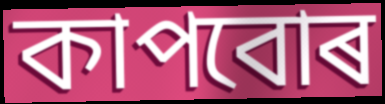
কাপবোৰ